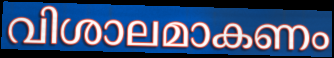
വിശാലമാകണം